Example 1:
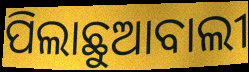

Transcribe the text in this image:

ପିଲାଛୁଆବାଲୀ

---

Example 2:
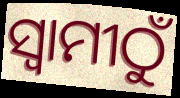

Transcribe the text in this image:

ସ୍ୱାମୀଠୁଁ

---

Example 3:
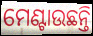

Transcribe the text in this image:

ମେଣ୍ଟାଉଛନ୍ତି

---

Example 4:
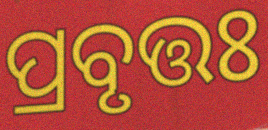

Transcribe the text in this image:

ପ୍ରବୃତ୍ତଃ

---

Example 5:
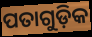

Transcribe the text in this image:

ପତାଗୁଡ଼ିକ